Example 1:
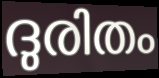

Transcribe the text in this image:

ദുരിതം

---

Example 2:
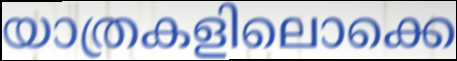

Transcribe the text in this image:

യാത്രകളിലൊക്കെ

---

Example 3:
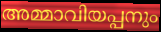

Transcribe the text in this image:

അമ്മാവിയപ്പനും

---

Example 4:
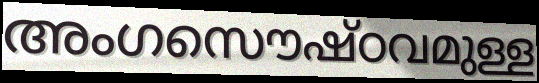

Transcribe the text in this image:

അംഗസൌഷ്ഠവമുള്ള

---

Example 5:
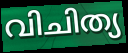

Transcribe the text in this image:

വിചിത്യ